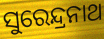
ସୁରେନ୍ଦ୍ରନାଥ